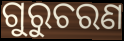
ଗୁରୁଚରଣ